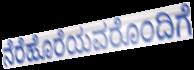
ನೆರೆಹೊರೆಯವರೊಂದಿಗೆ